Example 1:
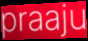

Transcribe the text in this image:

praaju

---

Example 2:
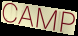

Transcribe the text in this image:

CAMP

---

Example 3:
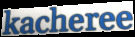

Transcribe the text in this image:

kacheree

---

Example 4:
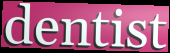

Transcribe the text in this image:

dentist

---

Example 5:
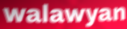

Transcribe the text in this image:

walawyan